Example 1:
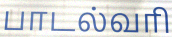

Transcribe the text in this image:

பாடல்வரி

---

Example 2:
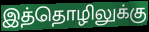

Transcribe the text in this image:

இத்தொழிலுக்கு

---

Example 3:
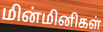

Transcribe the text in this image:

மின்மினிகள்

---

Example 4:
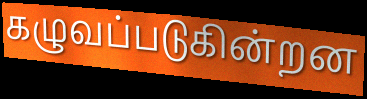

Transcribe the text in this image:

கழுவப்படுகின்றன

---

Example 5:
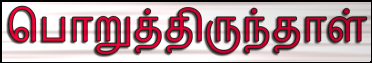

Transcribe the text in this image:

பொறுத்திருந்தாள்